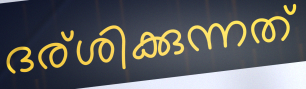
ദര്ശിക്കുന്നത്